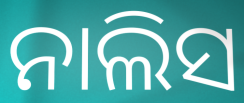
ନାଲିସ